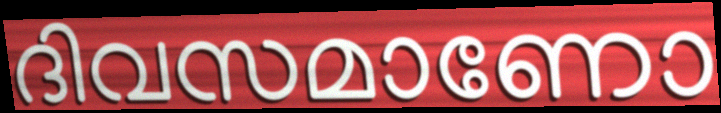
ദിവസമാണോ